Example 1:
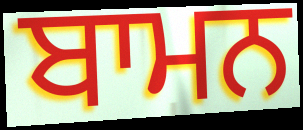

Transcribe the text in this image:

ਬਾਮਨ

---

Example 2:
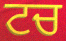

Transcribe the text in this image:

ਟਚ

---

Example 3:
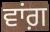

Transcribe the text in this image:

ਵਾਂਗ਼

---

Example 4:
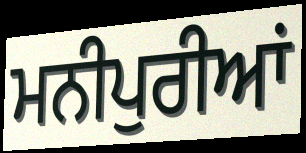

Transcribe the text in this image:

ਮਨੀਪੁਰੀਆਂ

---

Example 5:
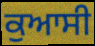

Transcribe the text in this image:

ਕੁਆਸੀ